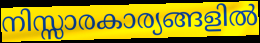
നിസ്സാരകാര്യങ്ങളിൽ